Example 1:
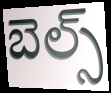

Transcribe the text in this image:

బెల్స్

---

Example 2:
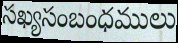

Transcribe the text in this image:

సఖ్యసంబంధములు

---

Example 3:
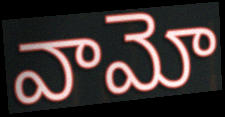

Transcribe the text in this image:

వామో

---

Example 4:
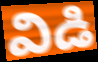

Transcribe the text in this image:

విడి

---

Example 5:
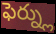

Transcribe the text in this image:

ఫెర్న్లు